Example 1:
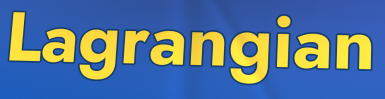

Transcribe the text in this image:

Lagrangian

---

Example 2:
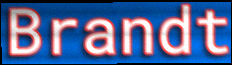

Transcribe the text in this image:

Brandt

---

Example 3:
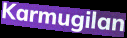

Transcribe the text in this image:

Karmugilan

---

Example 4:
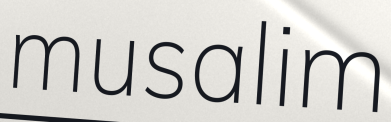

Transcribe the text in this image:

musalim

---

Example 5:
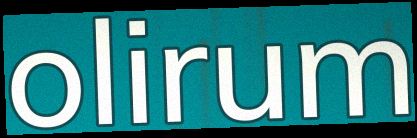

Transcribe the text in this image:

olirum